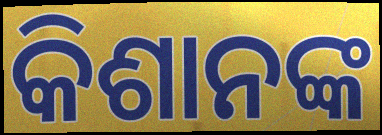
କିଶାନଙ୍କ